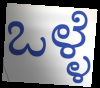
ಒಳ್ಳೆ